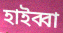
হাইব্বা